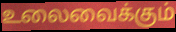
உலைவைக்கும்